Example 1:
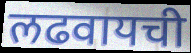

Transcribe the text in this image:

लढवायची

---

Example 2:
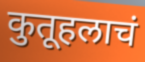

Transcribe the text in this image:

कुतूहलाचं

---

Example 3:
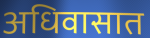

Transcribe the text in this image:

अधिवासात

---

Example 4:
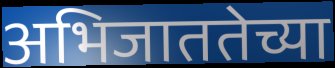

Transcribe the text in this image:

अभिजाततेच्या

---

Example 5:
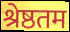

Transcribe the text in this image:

श्रेष्ठतम